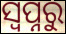
ସ୍ୱପ୍ନରୁ